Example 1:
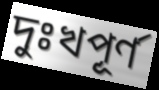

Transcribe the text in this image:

দুঃখপূর্ণ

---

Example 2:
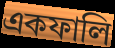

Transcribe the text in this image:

একফালি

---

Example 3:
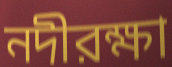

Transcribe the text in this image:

নদীরক্ষা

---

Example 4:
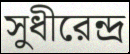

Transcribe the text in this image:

সুধীরেন্দ্র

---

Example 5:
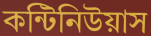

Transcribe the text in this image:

কন্টিনিউয়াস